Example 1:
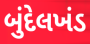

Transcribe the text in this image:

બુંદેલખંડ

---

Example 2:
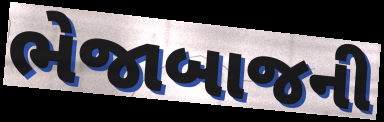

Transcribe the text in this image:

ભેજાબાજની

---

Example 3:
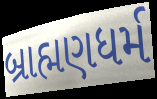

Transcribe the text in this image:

બ્રાહ્મણધર્મ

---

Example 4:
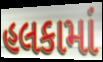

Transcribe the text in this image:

હલકામાં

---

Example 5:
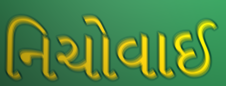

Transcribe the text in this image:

નિચોવાઈ